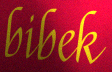
bibek